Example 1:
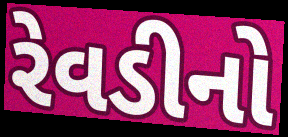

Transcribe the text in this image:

રેવડીનો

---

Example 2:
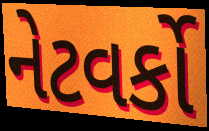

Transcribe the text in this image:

નેટવર્કો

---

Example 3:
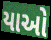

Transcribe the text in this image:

યાઓ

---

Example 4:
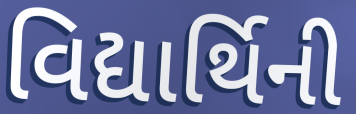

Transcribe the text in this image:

વિદ્યાર્થિની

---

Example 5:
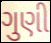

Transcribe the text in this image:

ગુણી